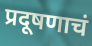
प्रदूषणाचं